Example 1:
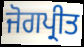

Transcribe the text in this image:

ਜੋਗਪ੍ਰੀਤ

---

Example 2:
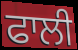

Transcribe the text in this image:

ਫਾਲੀ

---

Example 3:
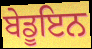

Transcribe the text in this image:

ਬੇਡੂਇਨ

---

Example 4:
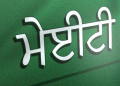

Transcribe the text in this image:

ਮੇਈਟੀ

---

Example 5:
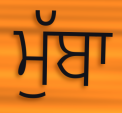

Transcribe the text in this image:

ਮੁੱਬਾ